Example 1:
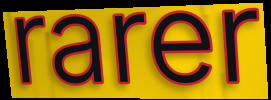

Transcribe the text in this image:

rarer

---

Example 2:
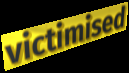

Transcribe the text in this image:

victimised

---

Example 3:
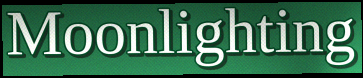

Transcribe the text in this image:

Moonlighting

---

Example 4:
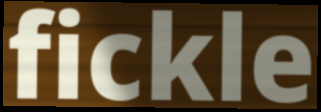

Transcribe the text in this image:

fickle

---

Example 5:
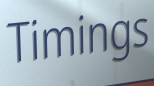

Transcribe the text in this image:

Timings